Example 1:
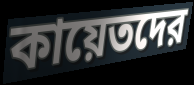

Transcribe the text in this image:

কায়েতদের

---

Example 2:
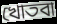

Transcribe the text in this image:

খোতবা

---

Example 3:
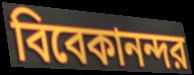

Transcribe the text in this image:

বিবেকানন্দর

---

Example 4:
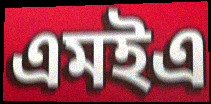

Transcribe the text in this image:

এমইএ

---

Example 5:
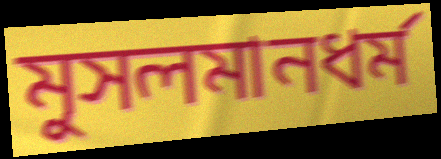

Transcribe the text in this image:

মুসলমানধর্ম